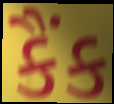
કૈંક